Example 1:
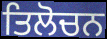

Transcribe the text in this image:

ਤਿਲੋਚਨ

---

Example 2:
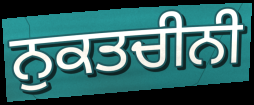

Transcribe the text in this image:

ਨੁਕਤਚੀਨੀ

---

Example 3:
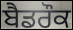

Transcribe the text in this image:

ਬੈਡਰੌਕ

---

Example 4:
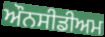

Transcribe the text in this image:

ਔਨਸੀਡੀਅਮ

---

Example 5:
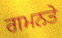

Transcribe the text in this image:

ਗਮਨਤੇ